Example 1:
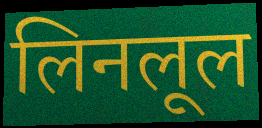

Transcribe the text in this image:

लिनलूल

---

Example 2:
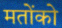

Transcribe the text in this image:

मतोंको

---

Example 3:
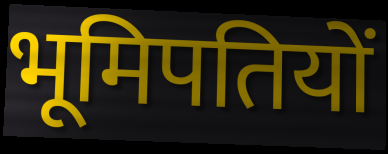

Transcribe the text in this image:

भूमिपतियों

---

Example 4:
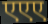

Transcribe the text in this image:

एएए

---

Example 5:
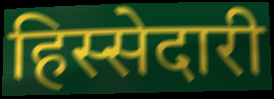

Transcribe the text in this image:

हिस्‍सेदारी